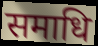
समाधि